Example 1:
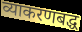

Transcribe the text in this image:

व्याकरणबद्ध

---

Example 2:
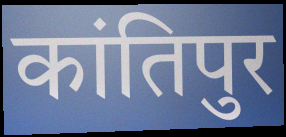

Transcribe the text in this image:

कांतिपुर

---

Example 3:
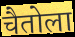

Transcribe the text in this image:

चैतोला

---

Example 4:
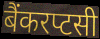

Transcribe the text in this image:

बैंकरप्टसी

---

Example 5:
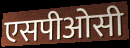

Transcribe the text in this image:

एसपीओसी